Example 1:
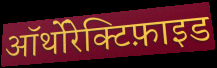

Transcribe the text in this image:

ऑर्थोरेक्टिफ़ाइड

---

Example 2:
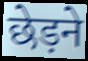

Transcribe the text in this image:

छेड़ने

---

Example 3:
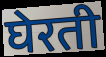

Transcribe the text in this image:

घेरती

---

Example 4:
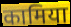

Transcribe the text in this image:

कामिया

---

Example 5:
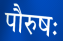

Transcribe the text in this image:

पौरुषः